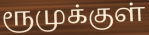
ரூமுக்குள்